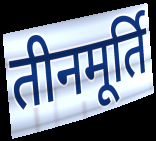
तीनमूर्ति